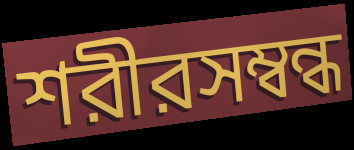
শরীরসম্বন্ধ